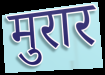
मुरार